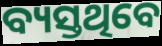
ବ୍ୟସ୍ତଥିବେ